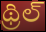
థ్రిల్